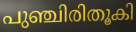
പുഞ്ചിരിതൂകി